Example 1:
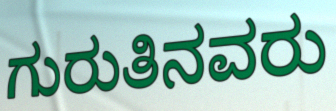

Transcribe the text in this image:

ಗುರುತಿನವರು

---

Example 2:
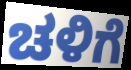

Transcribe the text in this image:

ಚಳಿಗೆ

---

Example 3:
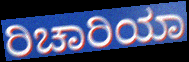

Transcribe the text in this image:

ರಿಚಾರಿಯಾ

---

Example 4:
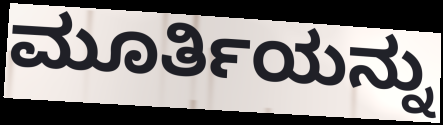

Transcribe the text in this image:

ಮೂರ್ತಿಯನ್ನು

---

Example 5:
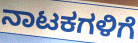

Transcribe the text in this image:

ನಾಟಕಗಳಿಗೆ